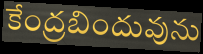
కేంద్రబిందువును